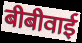
बीबीवाई